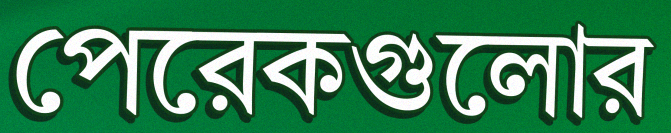
পেরেকগুলোর